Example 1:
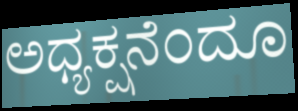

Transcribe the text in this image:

ಅಧ್ಯಕ್ಷನೆಂದೂ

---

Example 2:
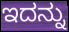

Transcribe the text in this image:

ಇದನ್ನು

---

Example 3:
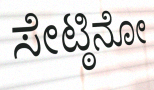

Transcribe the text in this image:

ಸೇಟ್ಠಿನೋ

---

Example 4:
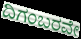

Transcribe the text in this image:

ದಿಗಂಬರವೇ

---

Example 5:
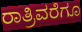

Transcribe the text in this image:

ರಾತ್ರಿವರೆಗೂ